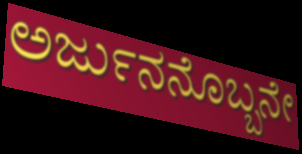
ಅರ್ಜುನನೊಬ್ಬನೇ